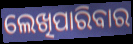
ଲେଖିପାରିବାର